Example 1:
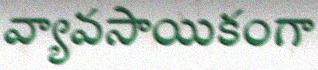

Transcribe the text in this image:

వ్యావసాయికంగా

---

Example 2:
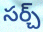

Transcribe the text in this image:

సర్చ్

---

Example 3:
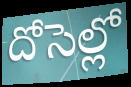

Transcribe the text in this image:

దోసెల్లో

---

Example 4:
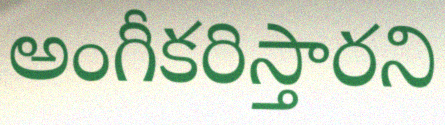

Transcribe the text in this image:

అంగీకరిస్తారని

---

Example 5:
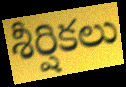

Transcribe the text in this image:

శీర్షికలు